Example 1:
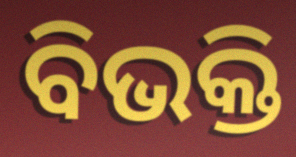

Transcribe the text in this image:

ବିଭକ୍ତି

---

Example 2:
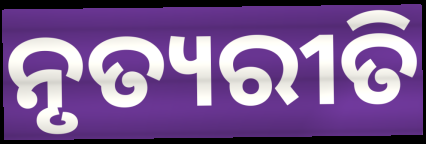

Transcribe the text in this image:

ନୃତ୍ୟରୀତି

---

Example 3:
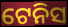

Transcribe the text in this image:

ଟେନିସ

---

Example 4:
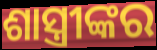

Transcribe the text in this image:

ଶାସ୍ତ୍ରୀଙ୍କର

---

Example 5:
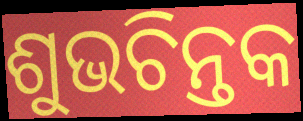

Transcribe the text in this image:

ଶୁଭଚିନ୍ତକ